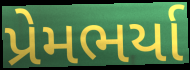
પ્રેમભર્યા